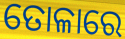
ତୋଳାରେ